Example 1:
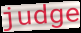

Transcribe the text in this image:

judge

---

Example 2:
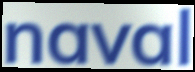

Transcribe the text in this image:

naval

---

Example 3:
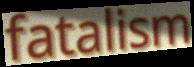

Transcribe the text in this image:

fatalism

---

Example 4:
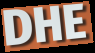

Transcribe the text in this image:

DHE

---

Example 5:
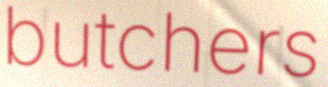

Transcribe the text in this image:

butchers